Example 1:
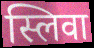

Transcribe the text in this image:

स्लिवा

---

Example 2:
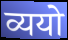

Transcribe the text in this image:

व्ययो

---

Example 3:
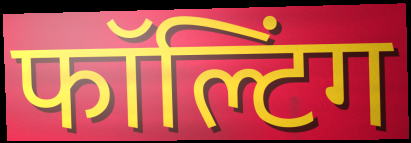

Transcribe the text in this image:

फॉल्टिंग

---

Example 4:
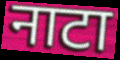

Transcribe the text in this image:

नाटा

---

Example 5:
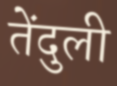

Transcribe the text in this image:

तेंदुली